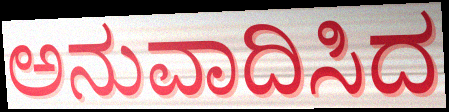
ಅನುವಾದಿಸಿದ